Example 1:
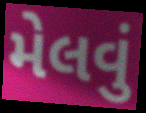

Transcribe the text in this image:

મેલવું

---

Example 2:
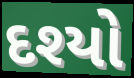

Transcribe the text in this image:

દશ્યો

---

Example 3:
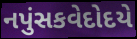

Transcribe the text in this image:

નપુંસકવેદોદયે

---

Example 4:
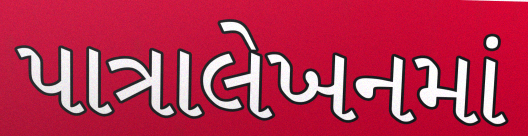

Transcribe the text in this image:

પાત્રાલેખનમાં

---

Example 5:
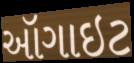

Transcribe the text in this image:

ઑગાઇટ